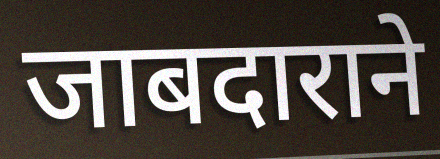
जाबदाराने